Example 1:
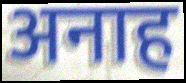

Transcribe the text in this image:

अनाह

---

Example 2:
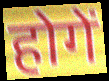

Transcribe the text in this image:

होगें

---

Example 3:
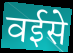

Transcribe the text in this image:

वईसे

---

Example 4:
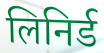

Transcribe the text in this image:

लिनिर्ड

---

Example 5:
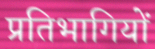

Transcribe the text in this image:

प्रतिभागियों